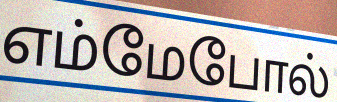
எம்மேபோல்